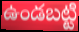
ఉండబట్టి